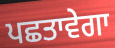
ਪਛਤਾਵੇਗਾ